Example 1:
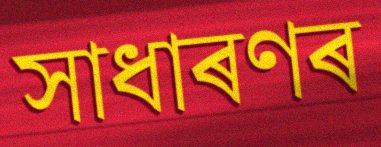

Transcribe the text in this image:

সাধাৰণৰ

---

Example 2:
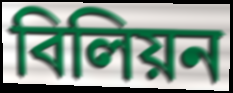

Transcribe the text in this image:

বিলিয়ন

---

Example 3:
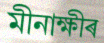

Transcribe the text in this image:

মীনাক্ষীৰ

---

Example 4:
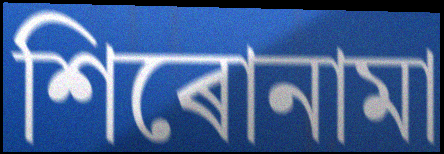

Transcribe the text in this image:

শিৰোনামা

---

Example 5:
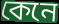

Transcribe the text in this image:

কেনে